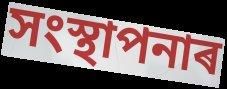
সংস্থাপনাৰ